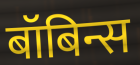
बॉबिन्स